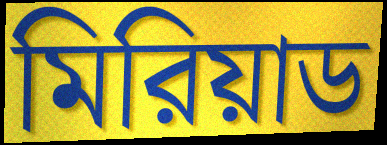
মিরিয়াড